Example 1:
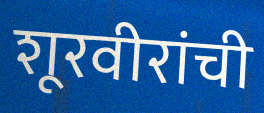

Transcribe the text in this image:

शूरवीरांची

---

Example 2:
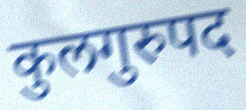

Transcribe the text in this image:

कुलगुरुपद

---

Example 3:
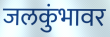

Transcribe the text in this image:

जलकुंभावर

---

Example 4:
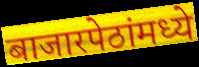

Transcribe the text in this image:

बाजारपेठांमध्ये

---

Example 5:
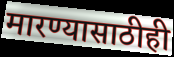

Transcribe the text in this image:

मारण्यासाठीही